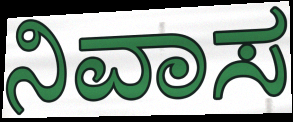
ನಿವಾಸ